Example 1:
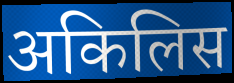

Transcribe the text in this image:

अकिलिस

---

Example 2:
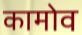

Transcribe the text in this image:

कामोव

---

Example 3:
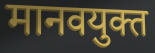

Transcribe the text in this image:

मानवयुक्त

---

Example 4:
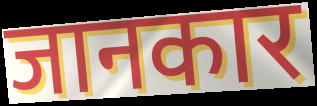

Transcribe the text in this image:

जानकार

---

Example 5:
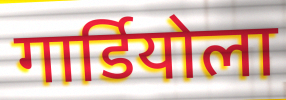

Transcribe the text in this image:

गार्डियोला